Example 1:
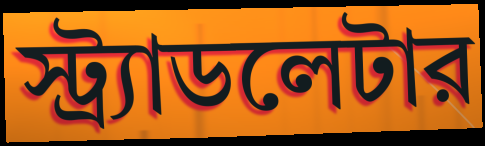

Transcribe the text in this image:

স্ট্র্যাডলেটার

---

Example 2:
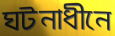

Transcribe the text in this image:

ঘটনাধীনে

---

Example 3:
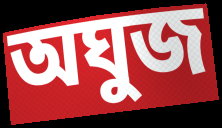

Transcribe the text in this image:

অঘুজ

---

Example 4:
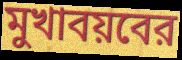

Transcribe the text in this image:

মুখাবয়বের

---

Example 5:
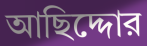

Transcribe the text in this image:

আছিদ্দোর